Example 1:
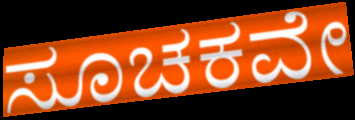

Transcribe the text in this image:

ಸೂಚಕವೇ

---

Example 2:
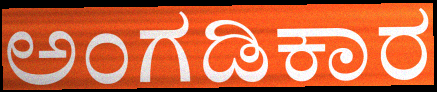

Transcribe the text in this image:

ಅಂಗಡಿಕಾರ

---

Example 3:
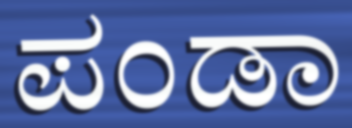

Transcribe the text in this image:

ಪಂಡಾ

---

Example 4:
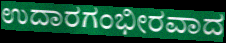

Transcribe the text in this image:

ಉದಾರಗಂಭೀರವಾದ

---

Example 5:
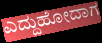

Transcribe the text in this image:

ಎದ್ದುಹೋದಾಗ